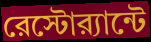
রেস্টোর‍্যান্টে